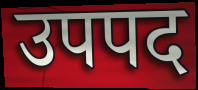
उपपद